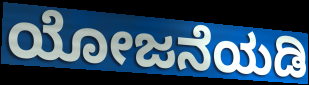
ಯೋಜನೆಯಡಿ